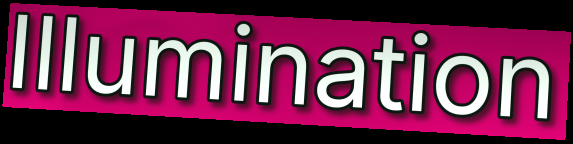
Illumination